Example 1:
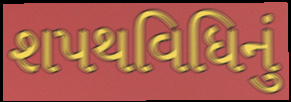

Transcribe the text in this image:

શપથવિધિનું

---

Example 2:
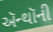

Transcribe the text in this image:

ઍન્થૉની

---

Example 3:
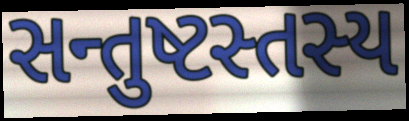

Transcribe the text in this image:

સન્તુષ્ટસ્તસ્ય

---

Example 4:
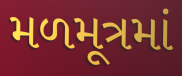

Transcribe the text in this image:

મળમૂત્રમાં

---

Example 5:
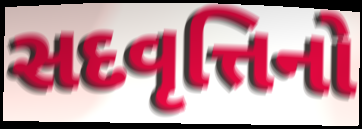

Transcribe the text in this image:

સદવૃત્તિનો